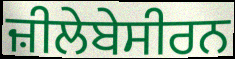
ਜ਼ੀਲੇਬੇਸੀਰਨ